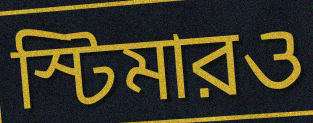
স্টিমারও